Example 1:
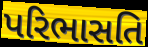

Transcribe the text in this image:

પરિભાસતિ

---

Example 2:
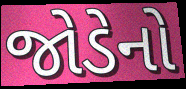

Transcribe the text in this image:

જોડેનો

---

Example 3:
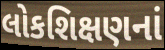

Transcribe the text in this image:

લોકશિક્ષણનાં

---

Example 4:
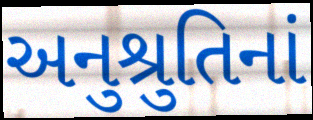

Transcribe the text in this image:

અનુશ્રુતિનાં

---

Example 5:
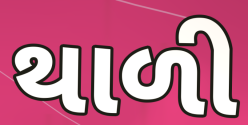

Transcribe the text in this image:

થાળી